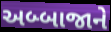
અબ્બાજાને